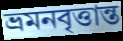
ভ্রমনবৃত্তান্ত